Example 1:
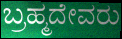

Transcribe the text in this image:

ಬ್ರಹ್ಮದೇವರು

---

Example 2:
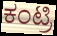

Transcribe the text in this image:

ಕಂಟ್ರಿ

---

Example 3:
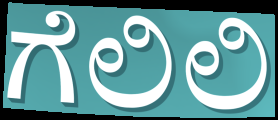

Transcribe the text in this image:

ಗೆಲಿಲಿ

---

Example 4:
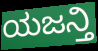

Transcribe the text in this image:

ಯಜನ್ತಿ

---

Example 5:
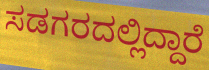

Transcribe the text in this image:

ಸಡಗರದಲ್ಲಿದ್ದಾರೆ